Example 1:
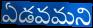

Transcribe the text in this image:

ఏడవమని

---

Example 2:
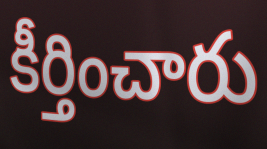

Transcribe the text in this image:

కీర్తించారు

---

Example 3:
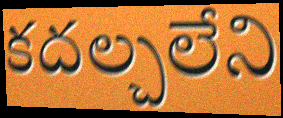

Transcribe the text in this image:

కదల్చలేని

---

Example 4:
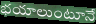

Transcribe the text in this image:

భయాలుంటూనే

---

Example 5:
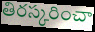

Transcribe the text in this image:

తిరస్కరించా